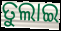
ତୁଲାଇ